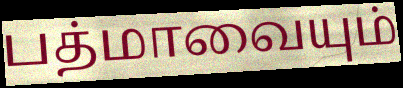
பத்மாவையும்